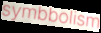
symbbolism